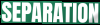
SEPARATION